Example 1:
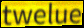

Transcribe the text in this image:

twelue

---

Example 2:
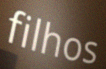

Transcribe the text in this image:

filhos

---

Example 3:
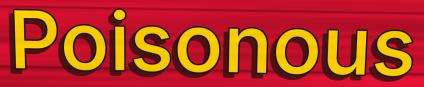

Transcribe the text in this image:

Poisonous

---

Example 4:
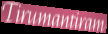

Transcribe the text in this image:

Tirumantiram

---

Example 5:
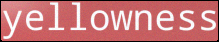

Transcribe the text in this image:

yellowness